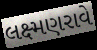
લક્ષ્મણરાવે